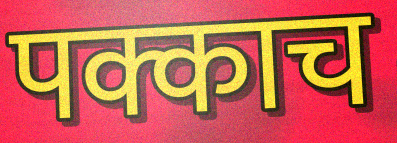
पक्काच